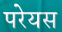
परेयस